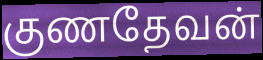
குணதேவன்